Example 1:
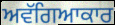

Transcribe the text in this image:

ਅਵੱਗਿਆਕਾਰ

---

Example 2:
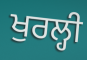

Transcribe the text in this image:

ਖੁਰਲ੍ਹੀ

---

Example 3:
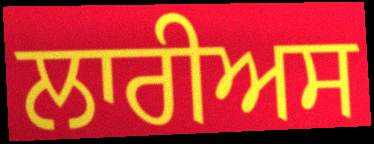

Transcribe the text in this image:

ਲਾਰੀਅਸ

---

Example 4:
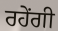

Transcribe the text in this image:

ਰਹੇਂਗੀ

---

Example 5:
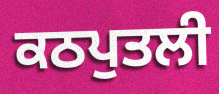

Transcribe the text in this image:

ਕਠਪੁਤਲੀ